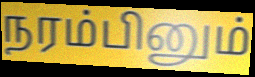
நரம்பினும்